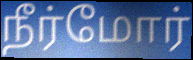
நீர்மோர்